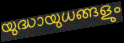
യുദ്ധായുധങ്ങളും